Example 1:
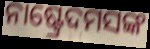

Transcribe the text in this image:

ନାଷ୍ଟ୍ରେଦମସଙ୍କ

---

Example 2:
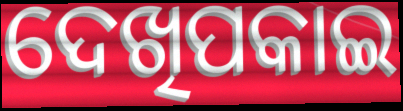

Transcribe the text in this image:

ଦେଖିପକାଇ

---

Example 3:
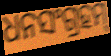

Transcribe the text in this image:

ଧନସଂଗ୍ରହମ୍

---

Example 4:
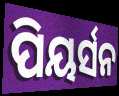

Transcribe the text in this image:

ପିୟର୍ସନ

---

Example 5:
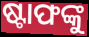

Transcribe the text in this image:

ଷ୍ଟାଫଙ୍କୁ